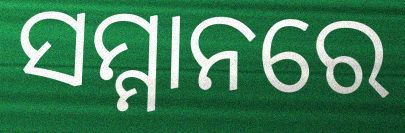
ସମ୍ମାନରେ